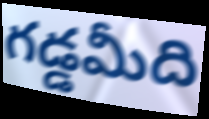
గడ్డమీది